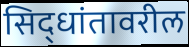
सिद्धांतावरील